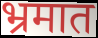
भ्रमात